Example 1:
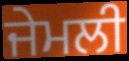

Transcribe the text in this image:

ਜੇਮਲੀ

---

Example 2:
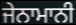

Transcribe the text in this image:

ਜੇਨਾਮਾਨੀ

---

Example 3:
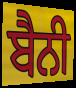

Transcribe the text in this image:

ਬੈਨੀ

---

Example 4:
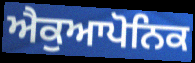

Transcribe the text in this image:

ਐਕੁਆਪੋਨਿਕ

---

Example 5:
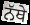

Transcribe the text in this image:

ਨੱਥੇ